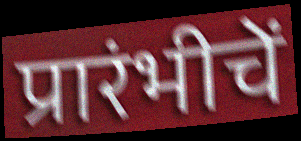
प्रारंभीचें